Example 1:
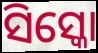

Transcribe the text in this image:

ସିସ୍କୋ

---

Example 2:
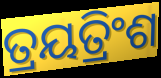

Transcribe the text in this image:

ତ୍ରୟତ୍ରିଂଶ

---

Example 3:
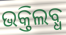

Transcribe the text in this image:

ଭକ୍ତିଲବ୍ଧ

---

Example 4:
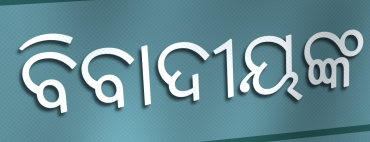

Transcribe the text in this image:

ବିବାଦୀୟଙ୍କ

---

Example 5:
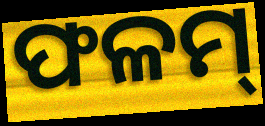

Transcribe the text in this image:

ଫଳମ୍